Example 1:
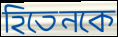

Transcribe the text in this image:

হিতেনকে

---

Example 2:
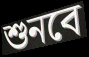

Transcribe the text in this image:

শুনবে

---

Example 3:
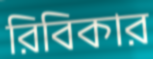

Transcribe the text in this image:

রিবিকার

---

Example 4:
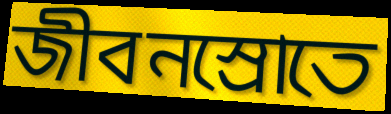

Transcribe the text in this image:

জীবনস্রোতে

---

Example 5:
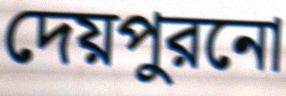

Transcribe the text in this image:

দেয়পুরনো